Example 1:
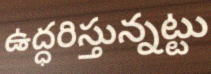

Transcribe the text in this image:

ఉద్ధరిస్తున్నట్టు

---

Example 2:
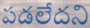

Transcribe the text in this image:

పడలేదని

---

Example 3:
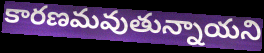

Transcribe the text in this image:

కారణమవుతున్నాయని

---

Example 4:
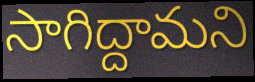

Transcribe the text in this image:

సాగిద్దామని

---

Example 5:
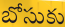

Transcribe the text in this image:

బోసుకు